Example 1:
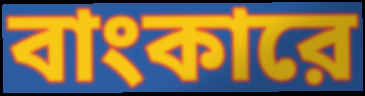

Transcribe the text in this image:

বাংকারে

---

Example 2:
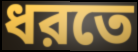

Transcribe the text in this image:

ধরতে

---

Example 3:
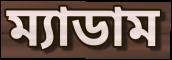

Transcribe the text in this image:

ম্যাডাম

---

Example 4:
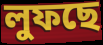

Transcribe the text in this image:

লুফছে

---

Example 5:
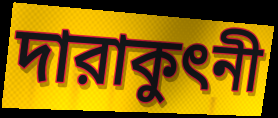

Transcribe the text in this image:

দারাকুৎনী